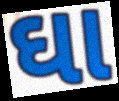
ઘા